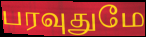
பரவுதுமே